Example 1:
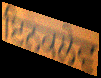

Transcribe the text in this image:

ਇਨਕਲੇਵ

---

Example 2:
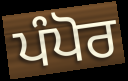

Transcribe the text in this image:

ਪੰਪੋਰ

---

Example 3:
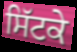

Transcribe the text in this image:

ਸਿੱਟਕੇ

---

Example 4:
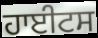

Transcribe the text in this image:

ਹਾਈਟਸ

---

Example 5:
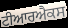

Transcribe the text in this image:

ਟੀਆਰਐਕਸ